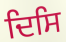
ਦਿਸਿ